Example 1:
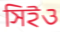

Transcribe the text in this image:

সিইও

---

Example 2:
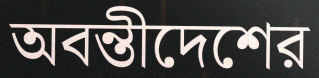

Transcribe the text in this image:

অবন্তীদেশের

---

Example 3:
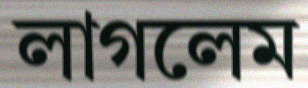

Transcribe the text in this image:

লাগলেম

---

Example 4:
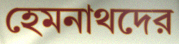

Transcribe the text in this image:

হেমনাথদের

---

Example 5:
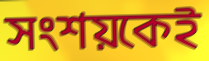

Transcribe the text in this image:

সংশয়কেই